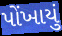
પોંખાયું